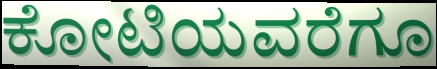
ಕೋಟಿಯವರೆಗೂ